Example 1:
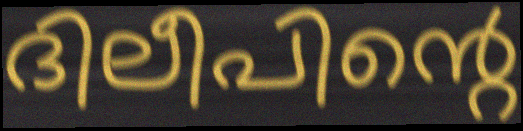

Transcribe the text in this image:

ദിലീപിന്റെ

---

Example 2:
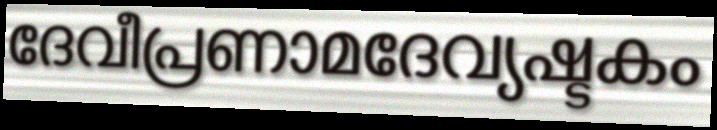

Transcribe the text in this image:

ദേവീപ്രണാമദേവ്യഷ്ടകം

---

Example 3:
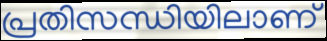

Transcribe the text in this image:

പ്രതിസന്ധിയിലാണ്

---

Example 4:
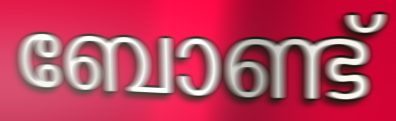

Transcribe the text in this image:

ബോണ്ട്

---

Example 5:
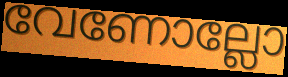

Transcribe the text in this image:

വേണോല്ലോ